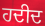
ਹਦੀਦ